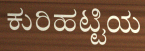
ಕುರಿಹಟ್ಟಿಯ